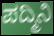
ಪದ್ಮಿನಿ